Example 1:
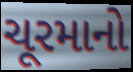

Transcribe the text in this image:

ચૂરમાનો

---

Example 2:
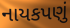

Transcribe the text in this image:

નાયકપણું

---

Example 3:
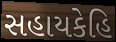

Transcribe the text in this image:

સહાયકેહિ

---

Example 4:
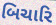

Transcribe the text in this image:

બિચારિ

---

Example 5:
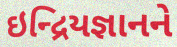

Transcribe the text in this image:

ઇન્દ્રિયજ્ઞાનને